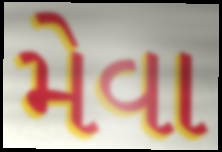
મેવા